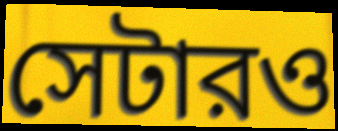
সেটারও